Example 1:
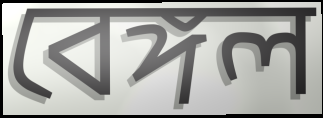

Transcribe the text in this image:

বেঙ্গল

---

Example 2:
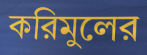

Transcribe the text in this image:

করিমুলের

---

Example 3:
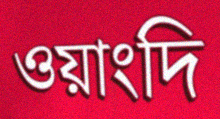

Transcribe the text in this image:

ওয়াংদি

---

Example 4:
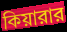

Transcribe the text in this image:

কিয়ারার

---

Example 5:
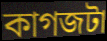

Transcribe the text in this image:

কাগজটা